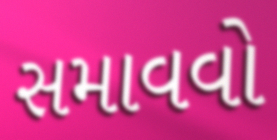
સમાવવો